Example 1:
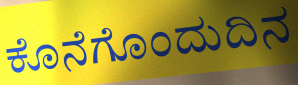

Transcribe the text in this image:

ಕೊನೆಗೊಂದುದಿನ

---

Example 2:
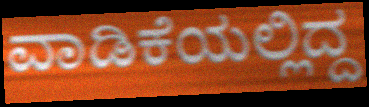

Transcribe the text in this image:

ವಾಡಿಕೆಯಲ್ಲಿದ್ದ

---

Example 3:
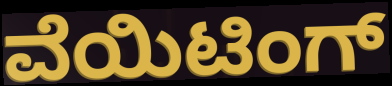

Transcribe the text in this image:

ವೆಯಿಟಿಂಗ್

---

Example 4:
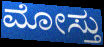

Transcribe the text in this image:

ಮೋಸ್ತು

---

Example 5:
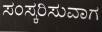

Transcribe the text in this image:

ಸಂಸ್ಕರಿಸುವಾಗ